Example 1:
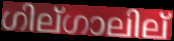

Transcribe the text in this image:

ഗില്ഗാലില്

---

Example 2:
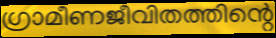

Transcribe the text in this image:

ഗ്രാമീണജീവിതത്തിന്റെ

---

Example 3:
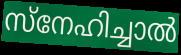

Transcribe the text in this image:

സ്നേഹിച്ചാൽ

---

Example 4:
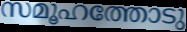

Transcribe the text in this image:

സമൂഹത്തോടു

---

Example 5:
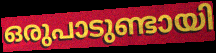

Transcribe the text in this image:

ഒരുപാടുണ്ടായി